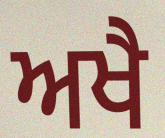
ਅਖੈ